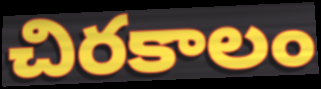
చిరకాలం